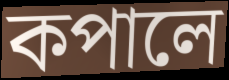
কপালে